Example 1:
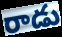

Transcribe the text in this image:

రాడు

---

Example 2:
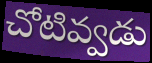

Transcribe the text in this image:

చోటివ్వడు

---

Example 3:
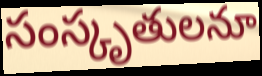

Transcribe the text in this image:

సంస్కృతులనూ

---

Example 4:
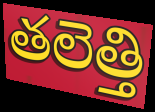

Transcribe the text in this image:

తలెత్తి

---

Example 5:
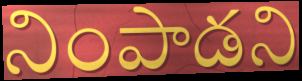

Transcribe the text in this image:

నింపాడని